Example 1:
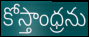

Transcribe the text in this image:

కోస్తాంధ్రను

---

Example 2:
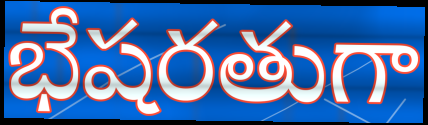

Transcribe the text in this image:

భేషరతుగా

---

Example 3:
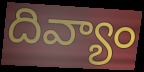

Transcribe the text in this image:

దివ్యాం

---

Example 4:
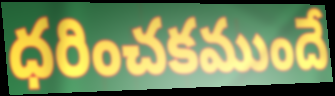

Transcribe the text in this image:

ధరించకముందే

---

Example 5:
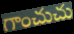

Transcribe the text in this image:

గాంచుచు